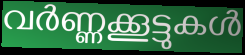
വർണ്ണക്കൂട്ടുകൾ